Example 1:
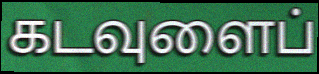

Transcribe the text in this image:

கடவுளைப்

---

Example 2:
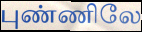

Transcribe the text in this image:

புண்ணிலே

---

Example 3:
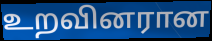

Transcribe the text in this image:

உறவினரான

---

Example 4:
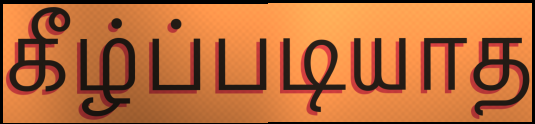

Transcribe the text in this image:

கீழ்ப்படியாத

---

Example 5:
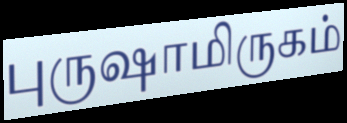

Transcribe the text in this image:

புருஷாமிருகம்